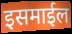
इसमाईल